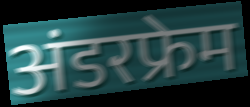
अंडरफ्रेम